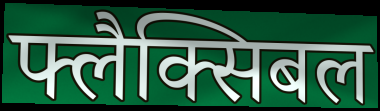
फ्लैक्सिबल